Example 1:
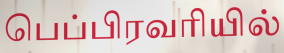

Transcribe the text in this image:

பெப்பிரவரியில்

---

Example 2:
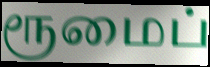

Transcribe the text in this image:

ரூமைப்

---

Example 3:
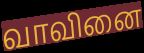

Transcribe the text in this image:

வாவினை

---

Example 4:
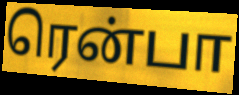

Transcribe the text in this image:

ரென்பா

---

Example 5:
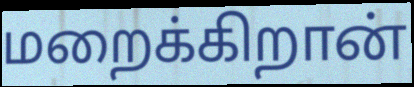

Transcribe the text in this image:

மறைக்கிறான்